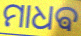
ମାଧଵ